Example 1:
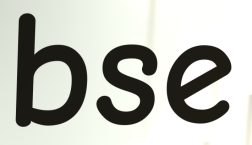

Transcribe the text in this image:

bse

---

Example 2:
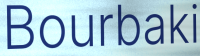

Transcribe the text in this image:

Bourbaki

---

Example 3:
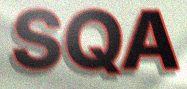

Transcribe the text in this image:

SQA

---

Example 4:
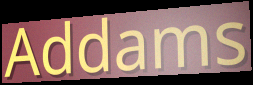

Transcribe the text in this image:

Addams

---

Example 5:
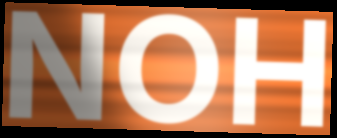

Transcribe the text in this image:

NOH